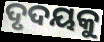
ଦୃଦୟକୁ